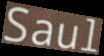
Saul